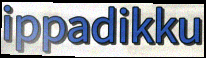
ippadikku